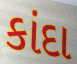
કાંદા